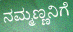
ನಮ್ಮಣ್ಣನಿಗೆ